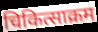
चिकित्साक्रम